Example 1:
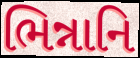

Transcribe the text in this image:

ભિન્નાનિ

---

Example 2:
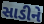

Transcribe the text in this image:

સાડીને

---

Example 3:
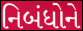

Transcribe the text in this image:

નિબંધોને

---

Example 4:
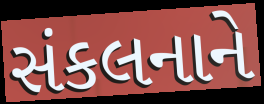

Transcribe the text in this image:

સંકલનાને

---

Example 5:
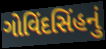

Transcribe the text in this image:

ગોવિંદસિંહનું